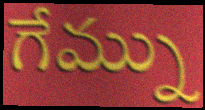
గేమ్ను